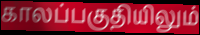
காலப்பகுதியிலும்